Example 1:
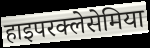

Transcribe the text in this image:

हाइपरक्लेसेमिया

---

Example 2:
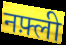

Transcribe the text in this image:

नफ़्ली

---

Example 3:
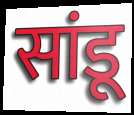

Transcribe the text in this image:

सांडू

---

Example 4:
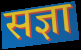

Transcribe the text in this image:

सज्ञा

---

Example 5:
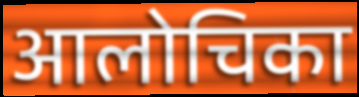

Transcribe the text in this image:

आलोचिका